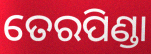
ତେରପିଣ୍ଡା